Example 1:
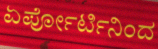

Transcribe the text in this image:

ಏರ್ಪೋರ್ಟಿನಿಂದ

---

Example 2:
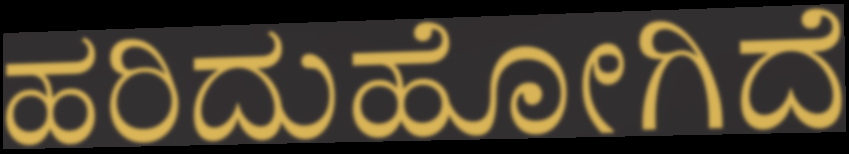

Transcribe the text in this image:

ಹರಿದುಹೋಗಿದೆ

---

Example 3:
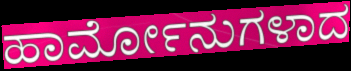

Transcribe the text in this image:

ಹಾರ್ಮೋನುಗಳಾದ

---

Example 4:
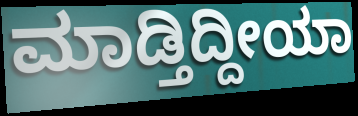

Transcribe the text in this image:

ಮಾಡ್ತಿದ್ದೀಯಾ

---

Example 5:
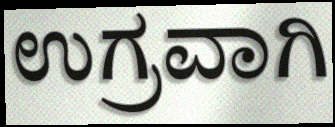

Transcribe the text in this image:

ಉಗ್ರವಾಗಿ